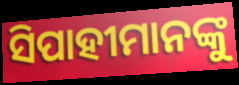
ସିପାହୀମାନଙ୍କୁ